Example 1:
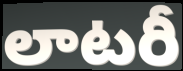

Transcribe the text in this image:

లాటరీ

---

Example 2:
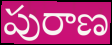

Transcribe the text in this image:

పురాణ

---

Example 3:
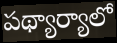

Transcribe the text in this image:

పథ్యార్యాలో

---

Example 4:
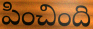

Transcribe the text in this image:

పించింది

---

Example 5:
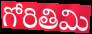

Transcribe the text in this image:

గోరితిమి